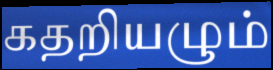
கதறியழும்